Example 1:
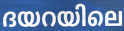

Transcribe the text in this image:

ദയറയിലെ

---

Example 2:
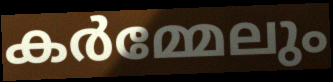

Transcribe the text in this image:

കർമ്മേലും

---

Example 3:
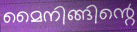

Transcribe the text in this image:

മൈനിങ്ങിന്റെ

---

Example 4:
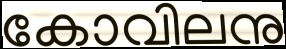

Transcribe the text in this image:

കോവിലനു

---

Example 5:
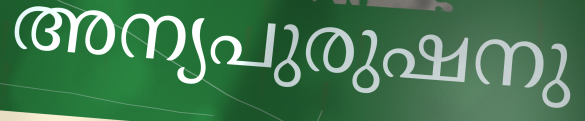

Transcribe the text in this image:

അന്യപുരുഷനു